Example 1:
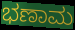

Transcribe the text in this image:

ಭಣಾಮ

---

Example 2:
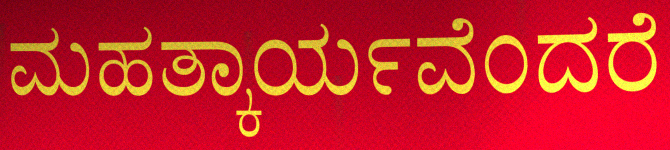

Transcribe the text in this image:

ಮಹತ್ಕಾರ್ಯವೆಂದರೆ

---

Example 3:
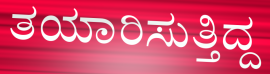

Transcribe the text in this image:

ತಯಾರಿಸುತ್ತಿದ್ದ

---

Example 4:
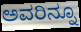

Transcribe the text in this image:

ಅವರಿನ್ನೂ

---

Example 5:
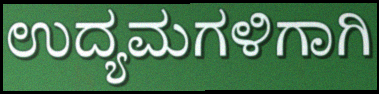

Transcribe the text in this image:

ಉದ್ಯಮಗಳಿಗಾಗಿ